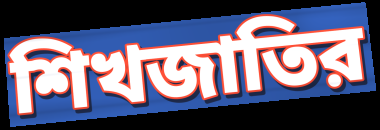
শিখজাতির